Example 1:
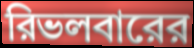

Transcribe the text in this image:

রিভলবারের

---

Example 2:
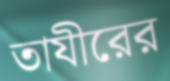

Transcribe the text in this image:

তাযীরের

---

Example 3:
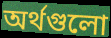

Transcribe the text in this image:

অর্থগুলো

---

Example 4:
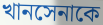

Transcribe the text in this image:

খানসেনাকে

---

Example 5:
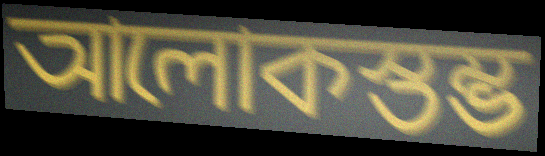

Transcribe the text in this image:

আলোকস্তম্ভ